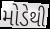
મોડેથી